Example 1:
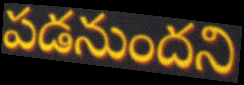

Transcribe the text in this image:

పడనుందని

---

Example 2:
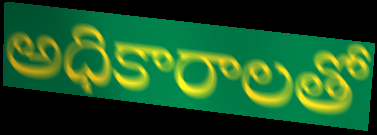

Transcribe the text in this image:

అధికారాలతో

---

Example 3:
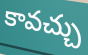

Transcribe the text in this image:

కావచ్చు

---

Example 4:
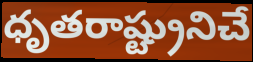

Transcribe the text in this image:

ధృతరాష్ట్రునిచే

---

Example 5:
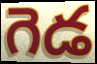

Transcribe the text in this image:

గెడ